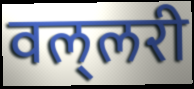
वल्लरी